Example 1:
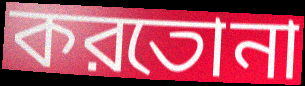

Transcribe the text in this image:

করতোনা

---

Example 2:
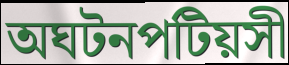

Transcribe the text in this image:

অঘটনপটিয়সী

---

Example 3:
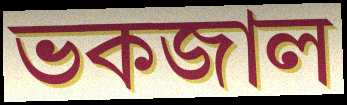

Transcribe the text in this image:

ভকজাল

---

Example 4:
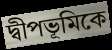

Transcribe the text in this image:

দ্বীপভূমিকে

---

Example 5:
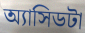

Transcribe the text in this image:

অ্যাসিডটা